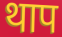
थाप